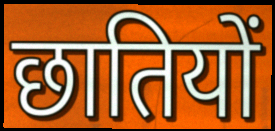
छातियों